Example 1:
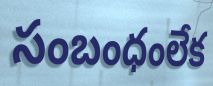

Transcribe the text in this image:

సంబంధంలేక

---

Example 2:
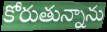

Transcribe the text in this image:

కోరుతున్నాను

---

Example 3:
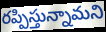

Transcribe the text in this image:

రప్పిస్తున్నామని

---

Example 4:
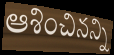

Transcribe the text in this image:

ఆశించినన్ని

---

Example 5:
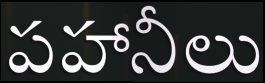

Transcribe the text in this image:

పహానీలు